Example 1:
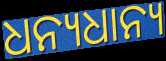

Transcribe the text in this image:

ଧନ୍ୟଧାନ୍ୟ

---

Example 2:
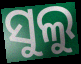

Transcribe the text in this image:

ସୁଲୁ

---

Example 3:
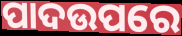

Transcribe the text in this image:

ପାଦଉପରେ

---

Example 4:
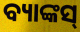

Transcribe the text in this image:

ବ୍ୟାଙ୍କସ୍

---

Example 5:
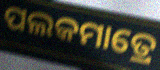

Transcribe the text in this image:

ପଲକମାତ୍ରେ